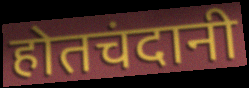
होतचंदानी